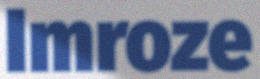
Imroze